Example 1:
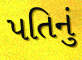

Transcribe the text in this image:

પતિનું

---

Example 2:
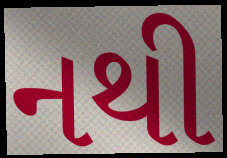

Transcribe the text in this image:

નથી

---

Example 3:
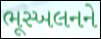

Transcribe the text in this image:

ભૂસ્ખલનને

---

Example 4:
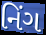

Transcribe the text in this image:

નિંગ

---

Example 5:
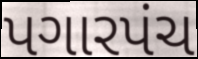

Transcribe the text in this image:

પગારપંચ